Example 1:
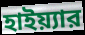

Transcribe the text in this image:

হাইয়্যার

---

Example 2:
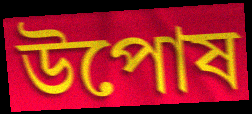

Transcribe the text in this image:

উপোষ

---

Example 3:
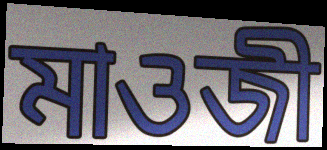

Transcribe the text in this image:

মাওজী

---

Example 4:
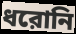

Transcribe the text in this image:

ধরোনি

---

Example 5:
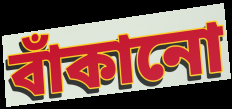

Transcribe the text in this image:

বাঁকানো